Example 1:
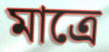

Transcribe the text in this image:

মাত্ৰে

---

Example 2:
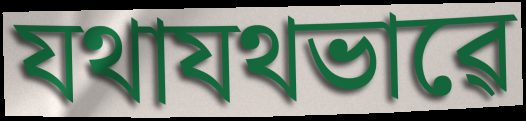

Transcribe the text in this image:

যথাযথভাৱে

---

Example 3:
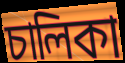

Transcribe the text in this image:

চালিকা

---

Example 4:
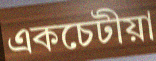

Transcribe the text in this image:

একচেটীয়া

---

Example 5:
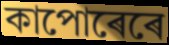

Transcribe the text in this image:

কাপোৰেৰে